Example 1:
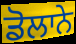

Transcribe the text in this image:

ਡੋਲਾਨੇ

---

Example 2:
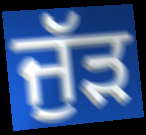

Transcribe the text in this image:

ਜੁੱੜ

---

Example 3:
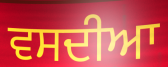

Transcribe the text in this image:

ਵਸਦੀਆ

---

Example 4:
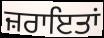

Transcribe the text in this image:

ਜ਼ਰਾਇਤਾਂ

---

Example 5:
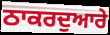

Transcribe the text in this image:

ਠਾਕਰਦੁਆਰੇ